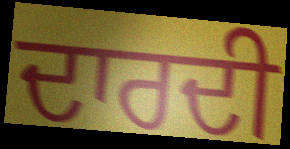
ਦਾਰਦੀ